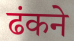
ढंकने